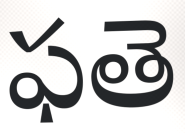
ఫతె